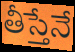
తీస్తేనే